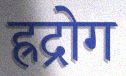
ह्रद्रोग